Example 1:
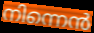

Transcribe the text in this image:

നിന്നെൻ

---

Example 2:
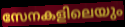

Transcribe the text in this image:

സേനകളിലെയും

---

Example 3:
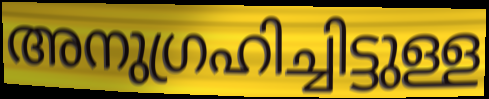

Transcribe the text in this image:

അനുഗ്രഹിച്ചിട്ടുള്ള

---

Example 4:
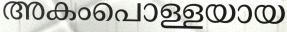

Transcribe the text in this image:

അകംപൊള്ളയായ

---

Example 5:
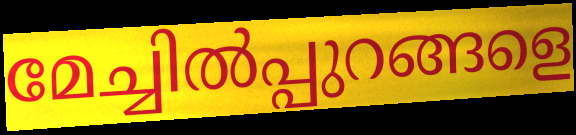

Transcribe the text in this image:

മേച്ചിൽപ്പുറങ്ങളെ